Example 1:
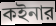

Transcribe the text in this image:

কইনার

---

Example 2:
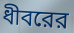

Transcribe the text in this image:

ধীবরের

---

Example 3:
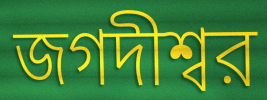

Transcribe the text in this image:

জগদীশ্বর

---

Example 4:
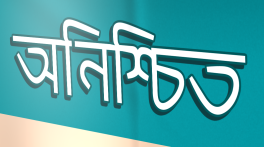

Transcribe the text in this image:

অনিশ্চিত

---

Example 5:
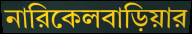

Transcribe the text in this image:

নারিকেলবাড়িয়ার